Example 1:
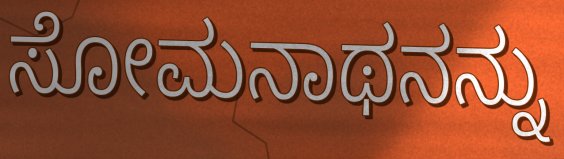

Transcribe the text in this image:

ಸೋಮನಾಥನನ್ನು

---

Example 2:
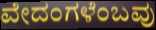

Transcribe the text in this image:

ವೇದಂಗಳೆಂಬವು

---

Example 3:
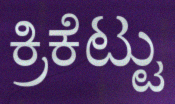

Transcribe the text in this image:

ಕ್ರಿಕೆಟ್ಟು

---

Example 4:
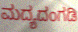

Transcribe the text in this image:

ಮದ್ಯದಂಗಡಿ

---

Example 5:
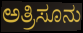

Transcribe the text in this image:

ಅತ್ರಿಸೂನು